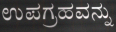
ಉಪಗ್ರಹವನ್ನು